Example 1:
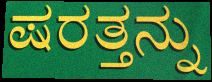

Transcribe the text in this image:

ಷರತ್ತನ್ನು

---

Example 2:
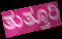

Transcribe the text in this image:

ತುತ್ತೂರಿ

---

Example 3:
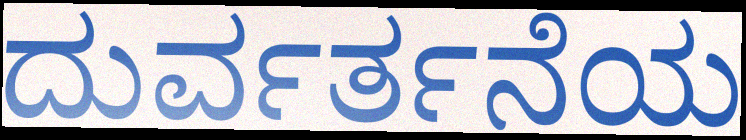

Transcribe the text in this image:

ದುರ್ವರ್ತನೆಯ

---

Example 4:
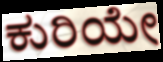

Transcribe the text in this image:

ಕುರಿಯೇ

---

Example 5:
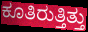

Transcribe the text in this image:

ಕೂತಿರುತ್ತಿತ್ತು